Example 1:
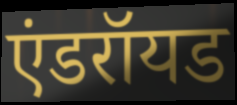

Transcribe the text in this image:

एंडरॉयड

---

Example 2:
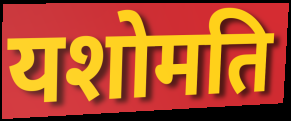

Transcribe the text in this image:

यशोमति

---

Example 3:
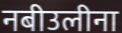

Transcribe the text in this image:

नबीउलीना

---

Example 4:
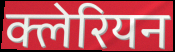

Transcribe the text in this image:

क्लेरियन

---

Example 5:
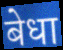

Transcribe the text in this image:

बेधा